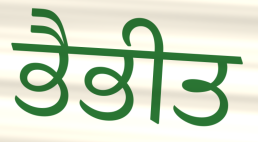
ਭੈਭੀਤ